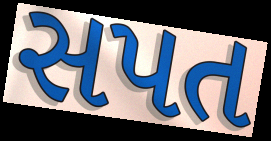
સપત